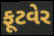
ફૂટવેર